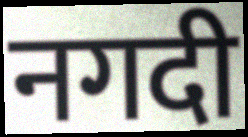
नगदी